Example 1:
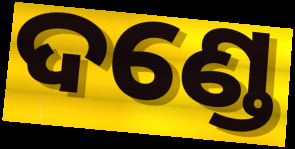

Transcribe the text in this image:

ଦଣ୍ଡେ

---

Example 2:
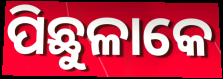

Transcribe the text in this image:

ପିଛୁଳାକେ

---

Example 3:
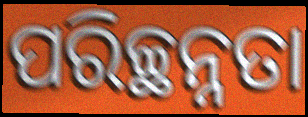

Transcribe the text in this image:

ପରିଚ୍ଛନ୍ନତା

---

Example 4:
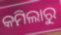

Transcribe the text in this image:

କମିଲାରୁ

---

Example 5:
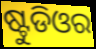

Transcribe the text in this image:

ଷ୍ଟୁଡିଓର